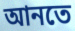
আনতে